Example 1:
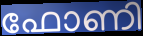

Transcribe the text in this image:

ഫോണി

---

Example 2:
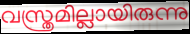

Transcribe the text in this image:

വസ്ത്രമില്ലായിരുന്നു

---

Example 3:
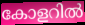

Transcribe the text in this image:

കോളറിൽ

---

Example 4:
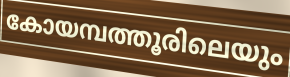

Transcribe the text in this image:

കോയമ്പത്തൂരിലെയും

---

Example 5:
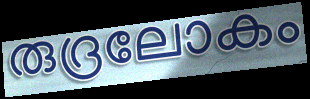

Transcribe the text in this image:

രുദ്രലോകം